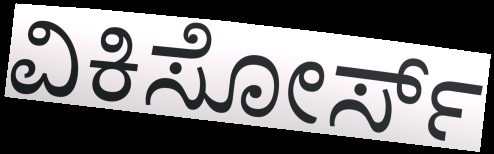
ವಿಕಿಸೋರ್ಸ್